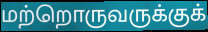
மற்றொருவருக்குக்